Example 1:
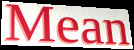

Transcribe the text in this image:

Mean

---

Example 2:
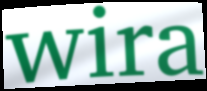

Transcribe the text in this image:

wira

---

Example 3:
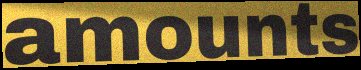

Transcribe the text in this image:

amounts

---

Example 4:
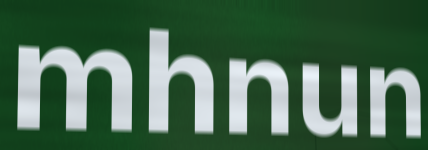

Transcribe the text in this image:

mhnun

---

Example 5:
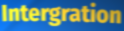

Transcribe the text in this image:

Intergration